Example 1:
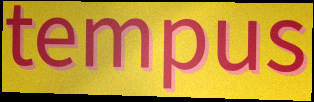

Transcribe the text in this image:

tempus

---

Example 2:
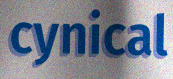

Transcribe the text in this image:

cynical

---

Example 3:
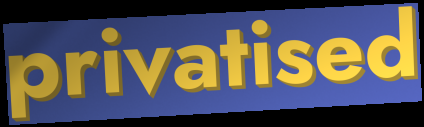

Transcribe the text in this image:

privatised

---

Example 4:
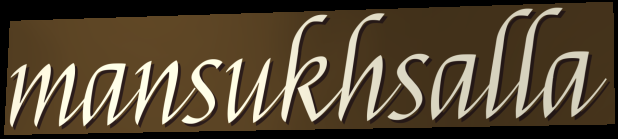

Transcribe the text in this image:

mansukhsalla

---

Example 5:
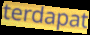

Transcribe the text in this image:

terdapat